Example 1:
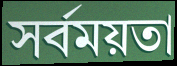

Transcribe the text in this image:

সর্বময়তা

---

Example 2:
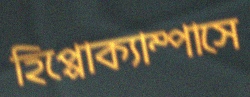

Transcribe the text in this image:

হিপ্পোক্যাম্পাসে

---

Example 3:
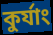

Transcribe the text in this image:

কুর্যাং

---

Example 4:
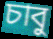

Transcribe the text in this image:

চাবু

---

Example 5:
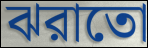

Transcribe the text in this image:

ঝরাতো